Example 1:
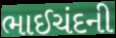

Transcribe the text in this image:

ભાઈચંદની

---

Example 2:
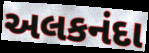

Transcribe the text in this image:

અલકનંદા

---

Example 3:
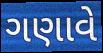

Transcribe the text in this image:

ગણાવે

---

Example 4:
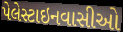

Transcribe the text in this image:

પેલેસ્ટાઇનવાસીઓ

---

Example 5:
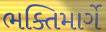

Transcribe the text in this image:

ભક્તિમાર્ગે